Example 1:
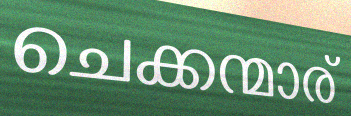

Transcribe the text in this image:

ചെക്കന്മാര്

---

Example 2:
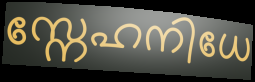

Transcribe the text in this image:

സ്നേഹനിധേ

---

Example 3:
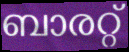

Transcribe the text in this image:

ബാരറ്റ്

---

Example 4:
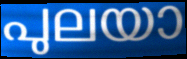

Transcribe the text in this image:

പുലയാ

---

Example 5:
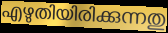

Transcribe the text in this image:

എഴുതിയിരിക്കുന്നതു